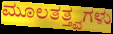
ಮೂಲತತ್ತ್ವಗಳು